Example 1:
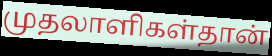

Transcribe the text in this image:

முதலாளிகள்தான்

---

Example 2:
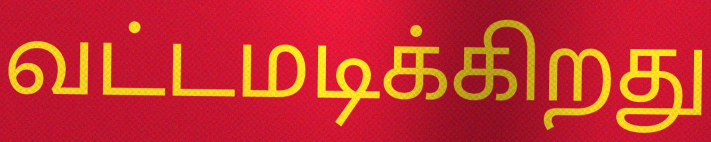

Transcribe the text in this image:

வட்டமடிக்கிறது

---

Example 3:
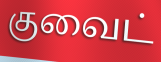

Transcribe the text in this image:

குவைட்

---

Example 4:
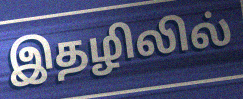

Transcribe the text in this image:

இதழிலில்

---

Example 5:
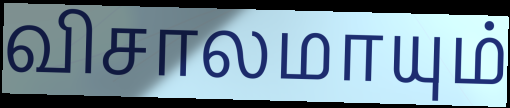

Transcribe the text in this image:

விசாலமாயும்